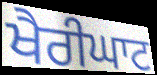
ਖੈਰੀਘਾਟ